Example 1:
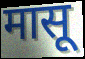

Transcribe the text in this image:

मासू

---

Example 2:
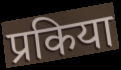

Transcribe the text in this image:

प्रकिया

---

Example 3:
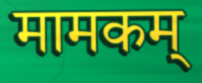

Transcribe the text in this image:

मामकम्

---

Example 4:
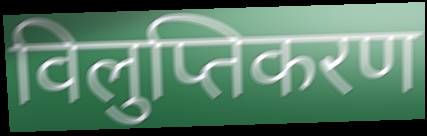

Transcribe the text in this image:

विलुप्तिकरण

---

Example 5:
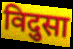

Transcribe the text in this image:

विदुसा